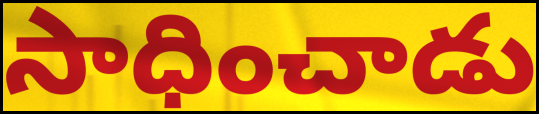
సాధించాడు